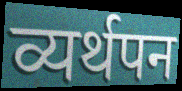
व्यर्थपन